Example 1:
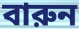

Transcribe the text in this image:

বারুন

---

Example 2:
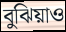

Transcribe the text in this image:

বুঝিয়াও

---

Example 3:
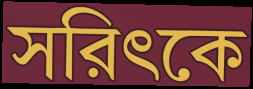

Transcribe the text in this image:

সরিৎকে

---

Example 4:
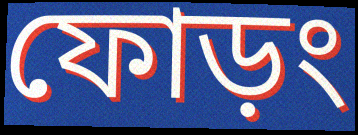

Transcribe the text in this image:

ফোড়ং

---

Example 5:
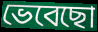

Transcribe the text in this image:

ভেবেছো